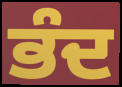
ਭੰਦ